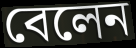
বেলেন